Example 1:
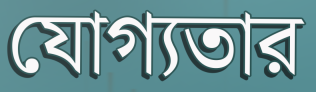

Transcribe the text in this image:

যোগ্যতার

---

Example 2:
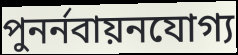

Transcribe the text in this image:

পুনর্নবায়নযোগ্য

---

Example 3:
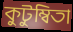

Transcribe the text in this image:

কুটুম্বিতা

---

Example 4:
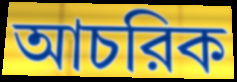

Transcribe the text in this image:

আচরিক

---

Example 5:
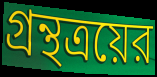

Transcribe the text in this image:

গ্রন্থত্রয়ের